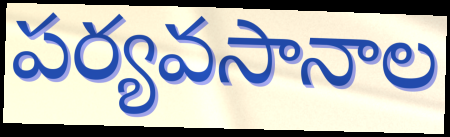
పర్యవసానాల